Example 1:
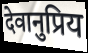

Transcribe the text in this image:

देवानुप्रिय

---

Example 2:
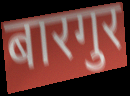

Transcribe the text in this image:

बारगुर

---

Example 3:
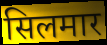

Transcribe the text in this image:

सिलमार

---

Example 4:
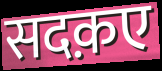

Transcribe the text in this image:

सदक़ए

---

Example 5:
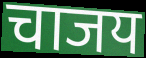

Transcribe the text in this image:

चाजय